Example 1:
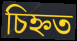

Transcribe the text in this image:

চিহ্নত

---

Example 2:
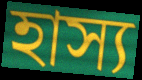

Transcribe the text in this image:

হাস্য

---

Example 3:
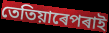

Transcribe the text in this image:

তেতিয়াৰেপৰাই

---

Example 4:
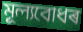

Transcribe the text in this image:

মূল্যবোধৰ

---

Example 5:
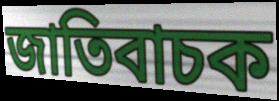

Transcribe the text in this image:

জাতিবাচক